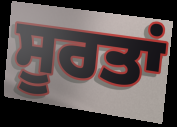
ਸੂਰਤਾਂ